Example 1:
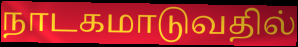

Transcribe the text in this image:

நாடகமாடுவதில்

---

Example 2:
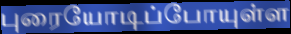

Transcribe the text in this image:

புரையோடிப்போயுள்ள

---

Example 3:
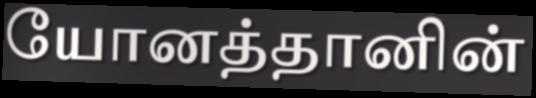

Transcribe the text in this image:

யோனத்தானின்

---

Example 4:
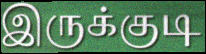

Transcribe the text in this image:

இருக்குடி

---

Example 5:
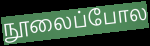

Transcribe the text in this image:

நூலைப்போல